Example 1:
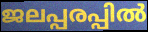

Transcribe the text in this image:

ജലപ്പരപ്പിൽ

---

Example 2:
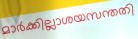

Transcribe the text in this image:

മാർക്കില്ലാശയസന്തതി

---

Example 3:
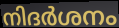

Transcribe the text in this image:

നിദർശനം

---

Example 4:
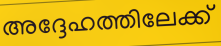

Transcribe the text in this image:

അദ്ദേഹത്തിലേക്ക്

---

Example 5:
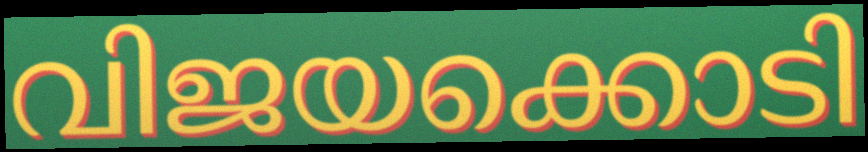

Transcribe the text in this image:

വിജയക്കൊടി